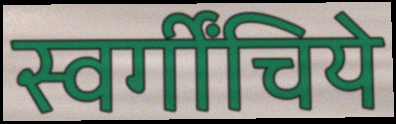
स्वर्गींचिये